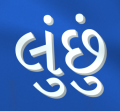
લુંછું